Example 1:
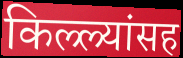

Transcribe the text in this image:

किल्ल्यांसह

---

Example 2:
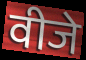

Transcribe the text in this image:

वीजे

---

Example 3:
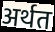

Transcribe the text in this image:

अर्थत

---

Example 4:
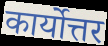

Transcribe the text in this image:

कार्योत्तर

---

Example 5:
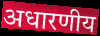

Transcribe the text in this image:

अधारणीय